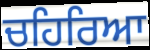
ਚਹਿਰਿਆ